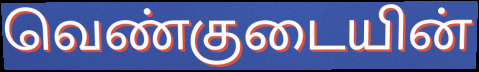
வெண்குடையின்